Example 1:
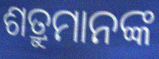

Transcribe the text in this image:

ଶତ୍ରୁମାନଙ୍କ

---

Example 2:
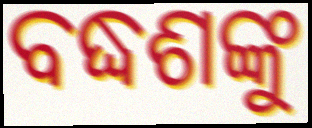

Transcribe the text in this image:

ବଦ୍ଧଶଙ୍କୁ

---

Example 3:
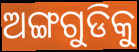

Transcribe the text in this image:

ଅଙ୍ଗଗୁଡିକୁ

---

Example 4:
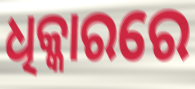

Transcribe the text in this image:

ଧିକ୍କାରରେ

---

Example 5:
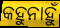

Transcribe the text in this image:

କହୁନାହୁଁ